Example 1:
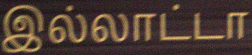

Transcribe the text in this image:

இல்லாட்டா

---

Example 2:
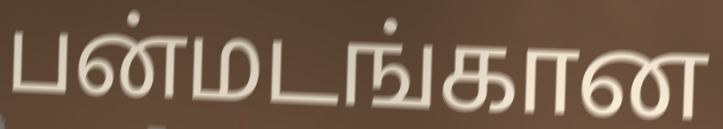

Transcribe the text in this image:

பன்மடங்கான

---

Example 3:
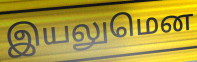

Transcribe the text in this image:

இயலுமென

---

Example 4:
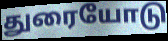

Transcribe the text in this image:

துரையோடு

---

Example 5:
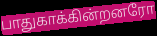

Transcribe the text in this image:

பாதுகாக்கின்றனரோ